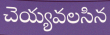
చెయ్యవలసిన